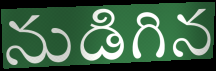
నుడిగిన